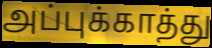
அப்புக்காத்து